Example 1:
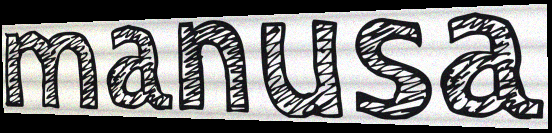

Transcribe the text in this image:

manusa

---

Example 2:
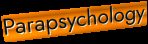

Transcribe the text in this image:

Parapsychology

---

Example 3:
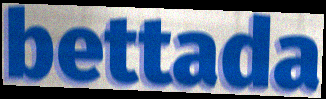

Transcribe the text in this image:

bettada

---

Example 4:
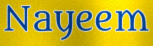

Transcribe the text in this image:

Nayeem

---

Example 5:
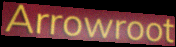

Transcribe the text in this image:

Arrowroot